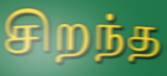
சிறந்த